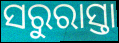
ସରୁରାସ୍ତା